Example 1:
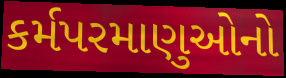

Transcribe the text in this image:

કર્મપરમાણુઓનો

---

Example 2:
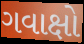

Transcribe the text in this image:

ગવાક્ષો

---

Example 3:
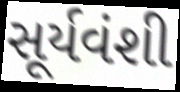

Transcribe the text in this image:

સૂર્યવંશી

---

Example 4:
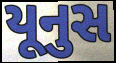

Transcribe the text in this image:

યૂનુસ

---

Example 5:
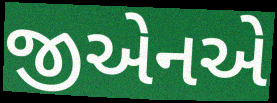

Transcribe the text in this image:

જીએનએ